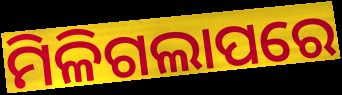
ମିଳିଗଲାପରେ